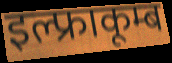
इल्फ्राकूम्ब